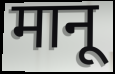
मानू